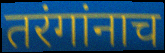
तरंगांनाच